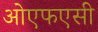
ओएफएसी